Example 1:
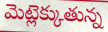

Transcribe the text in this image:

మెట్లెక్కుతున్న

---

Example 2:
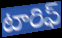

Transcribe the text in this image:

టారిఫ్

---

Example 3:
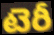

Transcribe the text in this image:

టెరీ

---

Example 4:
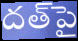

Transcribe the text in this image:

దత్‌పై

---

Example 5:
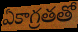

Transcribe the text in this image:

ఏకాగ్రతతో